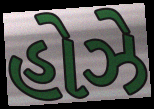
હોઝે